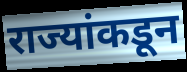
राज्यांकडून